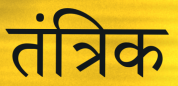
तंत्रिक